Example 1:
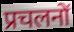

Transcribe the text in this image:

प्रचलनों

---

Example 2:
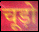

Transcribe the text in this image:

चूड़ो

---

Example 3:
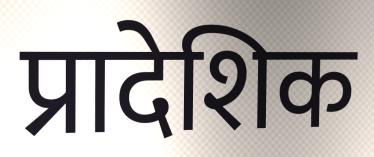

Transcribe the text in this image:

प्रादेशिक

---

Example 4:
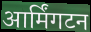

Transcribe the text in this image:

आर्मिंगटन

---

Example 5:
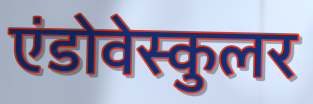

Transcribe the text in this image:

एंडोवेस्कुलर